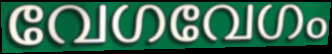
വേഗവേഗം